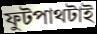
ফুটপাথটাই